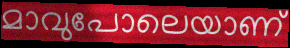
മാവുപോലെയാണ്